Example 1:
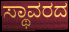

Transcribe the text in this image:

ಸ್ಥಾವರದ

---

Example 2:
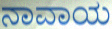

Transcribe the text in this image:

ನಾವಾಯ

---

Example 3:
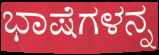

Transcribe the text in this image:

ಭಾಷೆಗಳನ್ನ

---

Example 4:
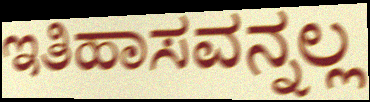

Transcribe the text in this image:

ಇತಿಹಾಸವನ್ನಲ್ಲ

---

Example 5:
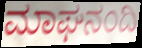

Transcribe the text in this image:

ಮಾಘನಂದಿ